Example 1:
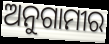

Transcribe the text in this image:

ଅନୁଗାମୀର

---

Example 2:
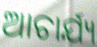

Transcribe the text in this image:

ଆଚାର୍ଯ୍ୟ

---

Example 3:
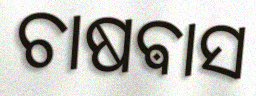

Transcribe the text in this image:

ଚାଷଵାସ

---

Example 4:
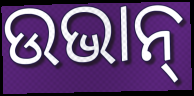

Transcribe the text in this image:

ଉଭାନ୍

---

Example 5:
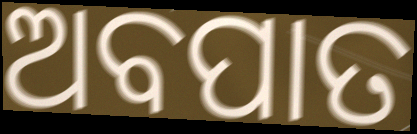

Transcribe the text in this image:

ଅବପାତ